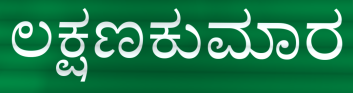
ಲಕ್ಷಣಕುಮಾರ